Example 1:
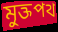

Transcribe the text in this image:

মুক্তপথ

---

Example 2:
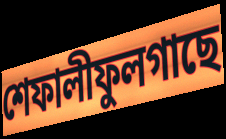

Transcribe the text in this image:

শেফালীফুলগাছে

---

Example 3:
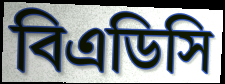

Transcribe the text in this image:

বিএডিসি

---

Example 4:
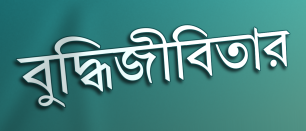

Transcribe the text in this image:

বুদ্ধিজীবিতার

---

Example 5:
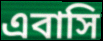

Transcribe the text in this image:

এবাসি